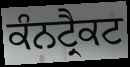
ਕੰਨਟ੍ਰੈਕਟ